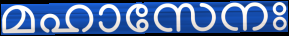
മഹാസേനഃ